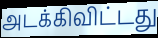
அடக்கிவிட்டது